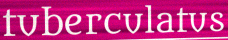
tuberculatus